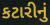
કટારીનું